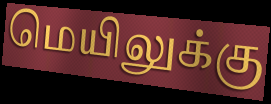
மெயிலுக்கு